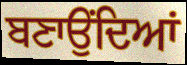
ਬਣਾਉਂਦਿਆਂ